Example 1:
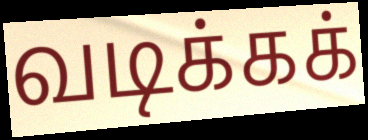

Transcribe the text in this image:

வடிக்கக்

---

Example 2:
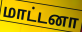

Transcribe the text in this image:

மாட்டனா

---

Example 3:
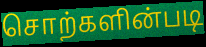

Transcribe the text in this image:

சொற்களின்படி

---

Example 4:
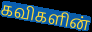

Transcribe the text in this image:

கவிகளின்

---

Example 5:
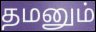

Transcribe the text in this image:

தமனும்